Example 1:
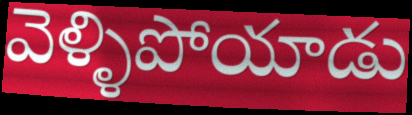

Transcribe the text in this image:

వెళ్ళిపోయాడు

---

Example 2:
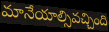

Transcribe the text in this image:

మానేయాల్సివచ్చింది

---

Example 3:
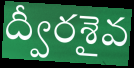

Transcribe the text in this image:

ద్వీరశైవ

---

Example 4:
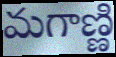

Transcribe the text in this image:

మగాణ్ణి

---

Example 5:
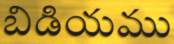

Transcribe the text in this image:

బిడియము